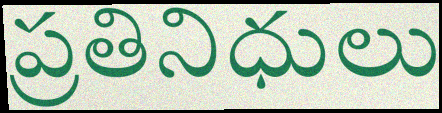
ప్రతినిధులు